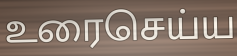
உரைசெய்ய